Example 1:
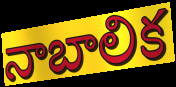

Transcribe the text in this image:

నాబాలిక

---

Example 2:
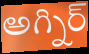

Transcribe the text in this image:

అగ్నిర్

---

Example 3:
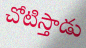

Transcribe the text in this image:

చోటిస్తాడు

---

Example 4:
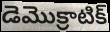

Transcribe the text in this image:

డెమొక్రాటిక్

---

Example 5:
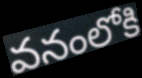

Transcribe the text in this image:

వనంలోకి